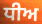
ਧੀਅ